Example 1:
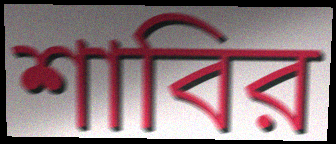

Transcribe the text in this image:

শাবির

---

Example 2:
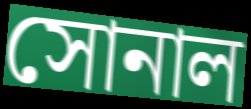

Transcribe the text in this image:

সোনাল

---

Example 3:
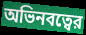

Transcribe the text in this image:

অভিনবত্বের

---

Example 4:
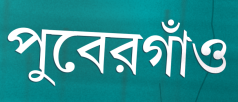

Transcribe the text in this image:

পুবেরগাঁও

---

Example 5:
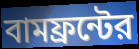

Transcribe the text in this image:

বামফ্রন্টের